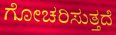
ಗೋಚರಿಸುತ್ತದೆ